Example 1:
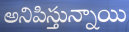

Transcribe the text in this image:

అనిపిస్తున్నాయి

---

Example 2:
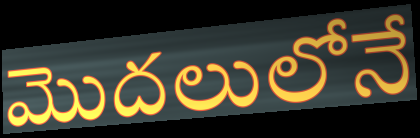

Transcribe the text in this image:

మొదలులోనే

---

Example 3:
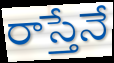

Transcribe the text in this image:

రాస్తేనే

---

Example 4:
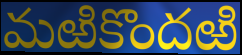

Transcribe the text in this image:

మఱికొందఱి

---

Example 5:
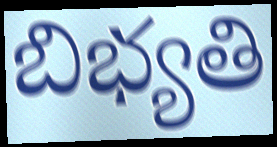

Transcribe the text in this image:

బిభ్యతి